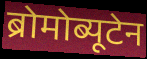
ब्रोमोब्यूटेन